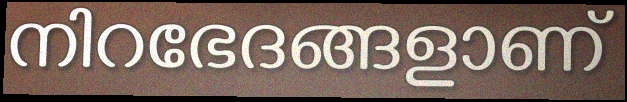
നിറഭേദങ്ങളാണ്